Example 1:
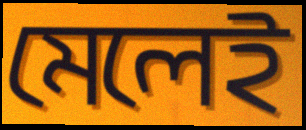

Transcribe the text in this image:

মেলেই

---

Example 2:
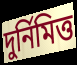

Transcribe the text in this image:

দুর্নিমিত্ত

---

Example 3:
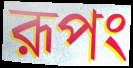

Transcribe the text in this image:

রূপং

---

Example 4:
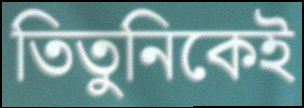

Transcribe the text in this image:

তিতুনিকেই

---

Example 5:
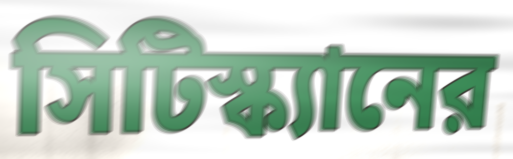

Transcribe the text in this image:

সিটিস্ক্যানের